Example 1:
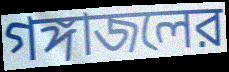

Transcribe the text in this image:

গঙ্গাজলের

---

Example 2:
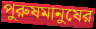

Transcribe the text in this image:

পুরুষমানুষের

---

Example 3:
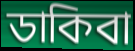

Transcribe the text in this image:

ডাকিবা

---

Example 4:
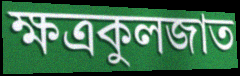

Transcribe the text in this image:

ক্ষত্রকুলজাত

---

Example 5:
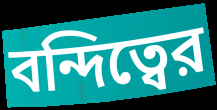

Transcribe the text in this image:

বন্দিত্বের